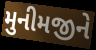
મુનીમજીને